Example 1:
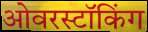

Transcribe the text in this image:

ओवरस्टॉकिंग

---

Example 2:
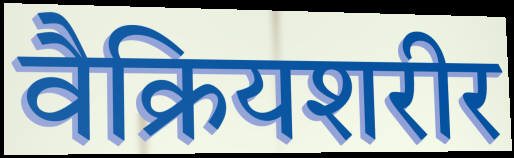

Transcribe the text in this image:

वैक्रियशरीर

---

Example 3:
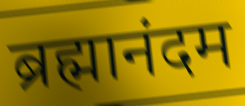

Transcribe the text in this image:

ब्रह्मानंदम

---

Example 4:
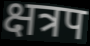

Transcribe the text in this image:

क्षत्रप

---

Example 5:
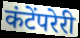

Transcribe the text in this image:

कंटेंपरेरी